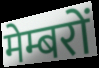
मेम्बरों